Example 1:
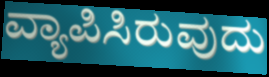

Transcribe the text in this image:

ವ್ಯಾಪಿಸಿರುವುದು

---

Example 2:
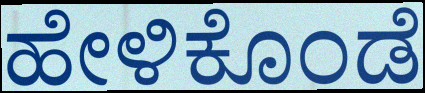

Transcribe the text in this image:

ಹೇಳಿಕೊಂಡೆ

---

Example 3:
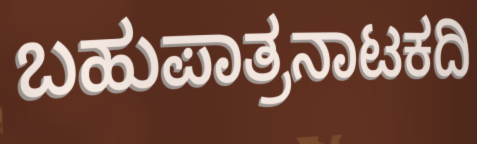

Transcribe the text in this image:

ಬಹುಪಾತ್ರನಾಟಕದಿ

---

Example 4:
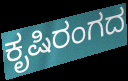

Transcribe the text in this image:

ಕೃಷಿರಂಗದ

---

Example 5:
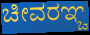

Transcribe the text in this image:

ಚೀವರಞ್ಚ